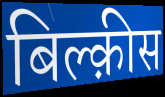
बिल्क़ीस